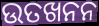
ଉତଖନନ